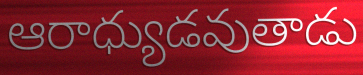
ఆరాధ్యుడవుతాడు